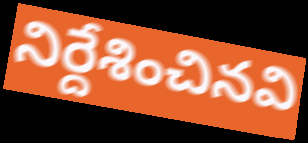
నిర్దేశించినవి